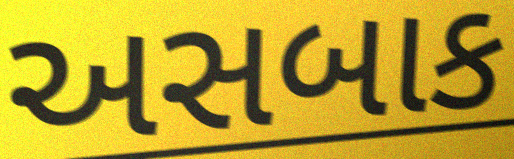
અસબાક